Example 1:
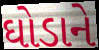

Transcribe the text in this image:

ઘોડાને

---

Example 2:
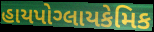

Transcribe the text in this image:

હાયપોગ્લાયકેમિક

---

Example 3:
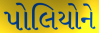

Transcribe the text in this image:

પોલિયોને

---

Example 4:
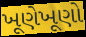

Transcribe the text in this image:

ખૂણેખૂણો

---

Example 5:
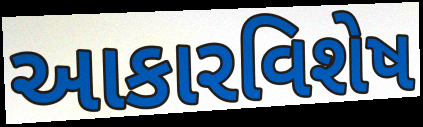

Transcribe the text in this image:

આકારવિશેષ